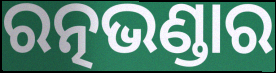
ରତ୍ନଭଣ୍ଡାର